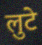
लुटे